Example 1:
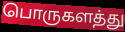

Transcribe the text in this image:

பொருகளத்து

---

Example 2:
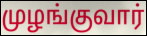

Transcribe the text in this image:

முழங்குவார்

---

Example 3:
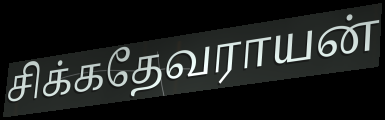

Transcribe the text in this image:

சிக்கதேவராயன்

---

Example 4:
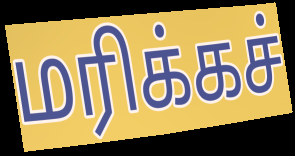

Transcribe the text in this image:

மரிக்கச்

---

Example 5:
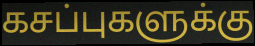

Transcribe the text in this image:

கசப்புகளுக்கு